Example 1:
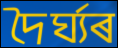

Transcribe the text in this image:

দৈৰ্ঘ্যৰ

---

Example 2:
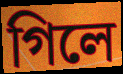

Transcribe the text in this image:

গিলে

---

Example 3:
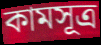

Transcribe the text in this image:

কামসূত্ৰ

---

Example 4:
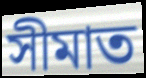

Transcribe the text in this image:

সীমাত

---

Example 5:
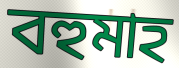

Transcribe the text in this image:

বহুমাহ